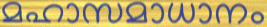
മഹാസമാധാനം